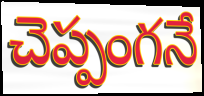
చెప్పంగనే